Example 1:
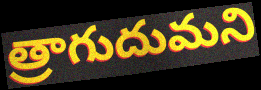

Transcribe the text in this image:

త్రాగుదుమని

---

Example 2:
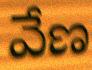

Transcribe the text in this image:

వేణ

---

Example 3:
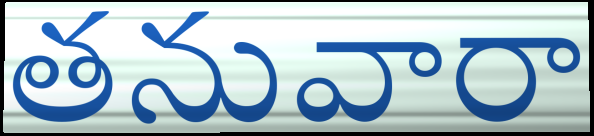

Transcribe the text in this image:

తనువారా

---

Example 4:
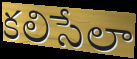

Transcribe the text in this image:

కలిసేలా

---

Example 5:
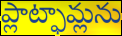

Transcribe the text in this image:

ప్లాట్ఫామ్లను